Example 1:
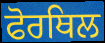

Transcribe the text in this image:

ਫੋਰਥਿਲ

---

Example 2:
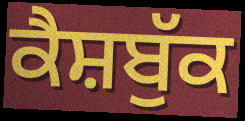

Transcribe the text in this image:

ਕੈਸ਼ਬੁੱਕ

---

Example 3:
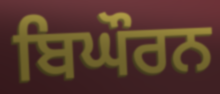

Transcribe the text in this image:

ਬਿਘੌਰਨ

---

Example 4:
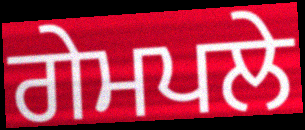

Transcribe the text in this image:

ਗੇਮਪਲੇ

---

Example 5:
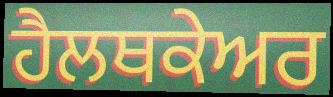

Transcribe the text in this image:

ਹੈਲਥਕੇਅਰ